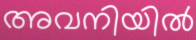
അവനിയിൽ